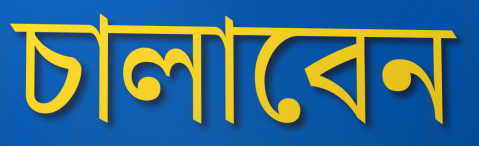
চালাবেন